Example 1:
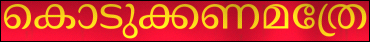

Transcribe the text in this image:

കൊടുക്കണമത്രേ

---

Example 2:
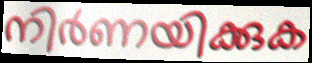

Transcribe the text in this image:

നിർണയിക്കുക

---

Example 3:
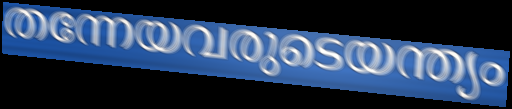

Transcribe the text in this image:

തന്നേയവരുടെയന്ത്യം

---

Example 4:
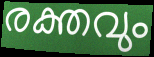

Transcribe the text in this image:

രക്തവും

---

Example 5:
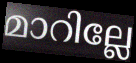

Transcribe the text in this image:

മാറില്ലേ